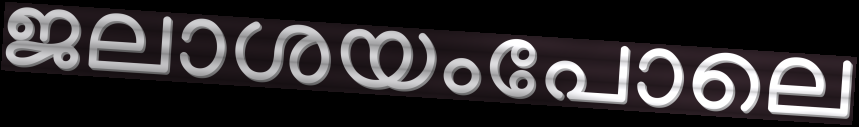
ജലാശയംപോലെ